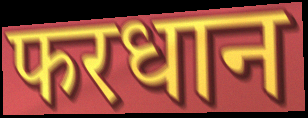
फरधान